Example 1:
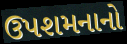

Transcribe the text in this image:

ઉપશમનાનો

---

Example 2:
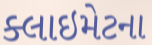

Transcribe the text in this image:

ક્લાઇમેટના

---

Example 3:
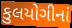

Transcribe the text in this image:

કુલયોગીનાં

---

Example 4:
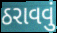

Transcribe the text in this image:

ઠરાવવું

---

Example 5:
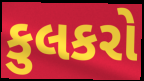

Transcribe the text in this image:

કુલકરો